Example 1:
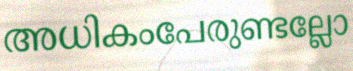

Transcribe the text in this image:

അധികംപേരുണ്ടല്ലോ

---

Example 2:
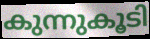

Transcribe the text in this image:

കുന്നുകൂടി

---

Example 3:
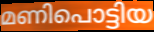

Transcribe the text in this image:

മണിപൊട്ടിയ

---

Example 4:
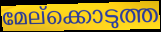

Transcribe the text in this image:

മേല്ക്കൊടുത്ത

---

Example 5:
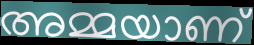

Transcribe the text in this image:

അമ്മയാണ്